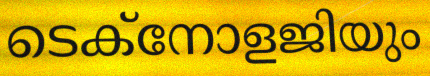
ടെക്നോളജിയും